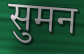
सुमन